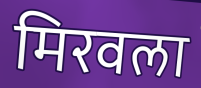
मिरवला